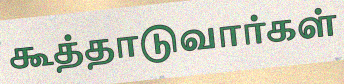
கூத்தாடுவார்கள்